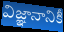
విజ్ఞానానికీ